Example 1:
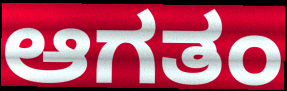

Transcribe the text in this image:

ಆಗತಂ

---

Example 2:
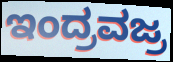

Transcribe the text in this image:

ಇಂದ್ರವಜ್ರ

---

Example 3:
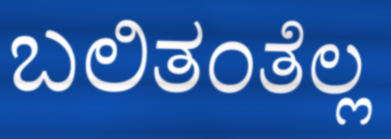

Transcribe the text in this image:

ಬಲಿತಂತೆಲ್ಲ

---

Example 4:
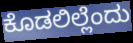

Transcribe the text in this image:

ಕೊಡಲಿಲ್ಲೆಂದು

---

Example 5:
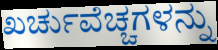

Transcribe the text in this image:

ಖರ್ಚುವೆಚ್ಚಗಳನ್ನು